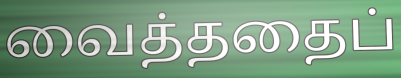
வைத்ததைப்